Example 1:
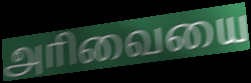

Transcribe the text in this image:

அரிவையை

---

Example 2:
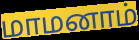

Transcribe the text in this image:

மாமனாம்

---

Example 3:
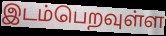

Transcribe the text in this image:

இடம்பெறவுள்ள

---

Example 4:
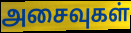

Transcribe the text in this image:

அசைவுகள்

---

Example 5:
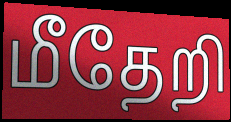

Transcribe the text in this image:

மீதேறி